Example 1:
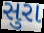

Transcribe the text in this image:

સુરા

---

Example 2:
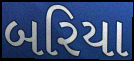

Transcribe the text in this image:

બરિયા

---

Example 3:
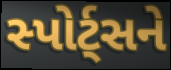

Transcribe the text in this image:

સ્પોર્ટ્સને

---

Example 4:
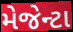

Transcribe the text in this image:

મેજેન્ટા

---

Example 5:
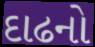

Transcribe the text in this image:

દાઢનો